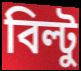
বিল্টু